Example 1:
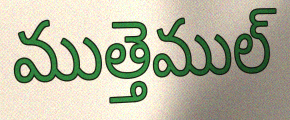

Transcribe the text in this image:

ముత్తెముల్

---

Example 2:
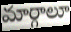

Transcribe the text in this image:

మార్గాలూ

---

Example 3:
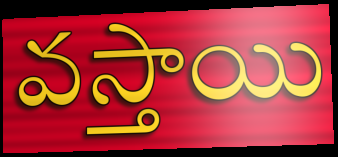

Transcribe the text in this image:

వస్తాయి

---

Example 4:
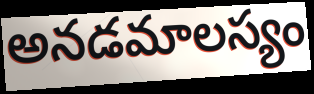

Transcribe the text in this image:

అనడమాలస్యం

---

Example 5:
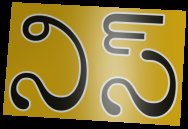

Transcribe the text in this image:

నిస్